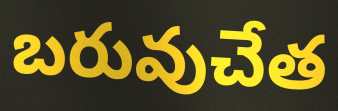
బరువుచేత